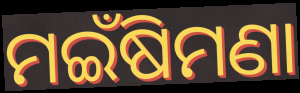
ମଇଁଷିମଣା